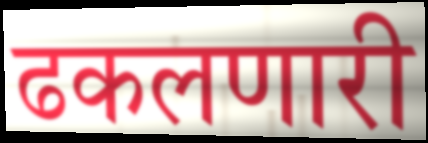
ढकलणारी